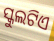
ସ୍କୁଲଟିଏ